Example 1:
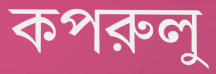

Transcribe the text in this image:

কপরুলু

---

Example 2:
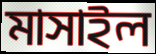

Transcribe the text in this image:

মাসাইল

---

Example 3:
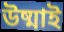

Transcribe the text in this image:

উষ্মাই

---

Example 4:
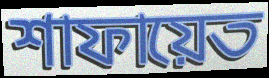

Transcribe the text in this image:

শাফায়েত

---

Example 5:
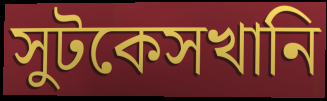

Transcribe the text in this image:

সুটকেসখানি